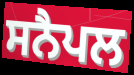
ਸਨੈਪਲ